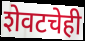
शेवटचेही